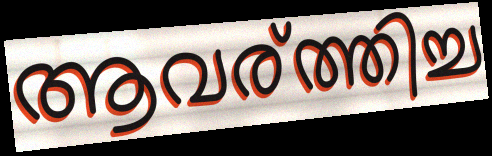
ആവര്ത്തിച്ച